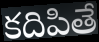
కదిపితే